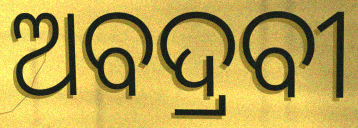
ଅବଦ୍ରବୀ